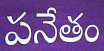
పనేతం